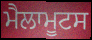
ਮੈਲਾਮੂਟਸ